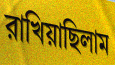
রাখিয়াছিলাম